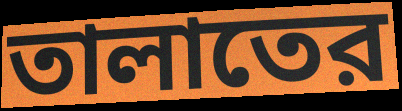
তালাতের